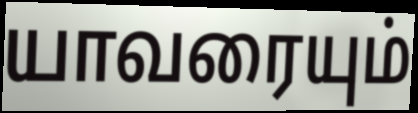
யாவரையும்